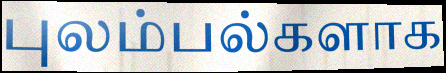
புலம்பல்களாக